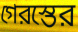
গেরস্তের